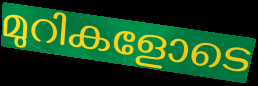
മുറികളോടെ